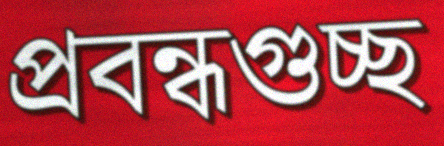
প্রবন্ধগুচ্ছ